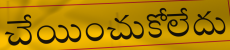
చేయించుకోలేదు